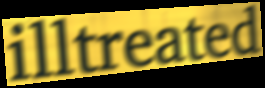
illtreated